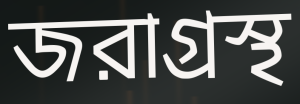
জরাগ্রস্থ